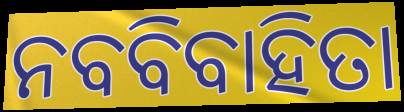
ନବବିବାହିତା